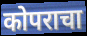
कोपराचा